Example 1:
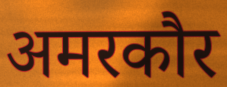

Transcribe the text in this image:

अमरकौर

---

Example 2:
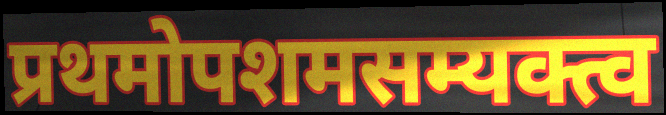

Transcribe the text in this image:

प्रथमोपशमसम्यक्त्व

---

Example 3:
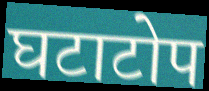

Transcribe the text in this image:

घटाटोप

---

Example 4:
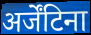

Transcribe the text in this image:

अर्जेंटिना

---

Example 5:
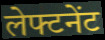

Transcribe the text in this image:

लेफ्टनेंट